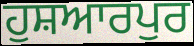
ਹੁਸ਼ਆਰਪੁਰ